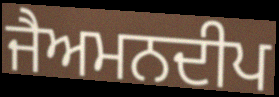
ਜੈਅਮਨਦੀਪ